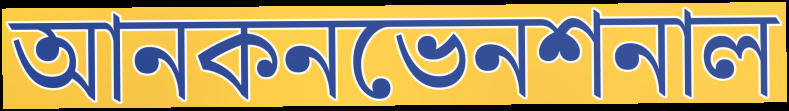
আনকনভেনশনাল